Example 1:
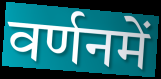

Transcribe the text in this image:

वर्णनमें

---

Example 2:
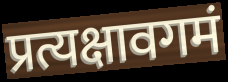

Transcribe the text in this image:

प्रत्यक्षावगमं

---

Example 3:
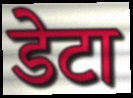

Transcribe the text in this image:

डेटा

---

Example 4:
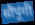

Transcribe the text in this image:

सौंपूंगी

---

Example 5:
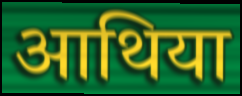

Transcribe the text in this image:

आथिया